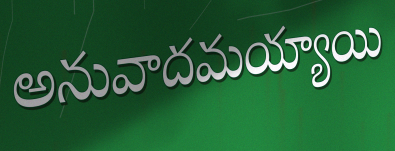
అనువాదమయ్యాయి